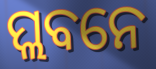
ପ୍ଲବନେ